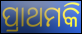
ପ୍ରାଥମକି